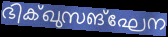
ഭിക്ഖുസങ്ഘേന